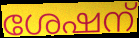
ശേഷന്